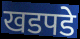
खडपडे